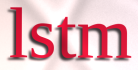
lstm